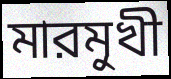
মারমুখী